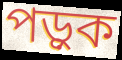
পড়ুক